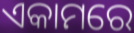
ଏକାମରେ